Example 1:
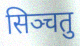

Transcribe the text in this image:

सिञ्चतु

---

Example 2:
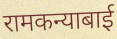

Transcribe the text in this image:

रामकन्याबाई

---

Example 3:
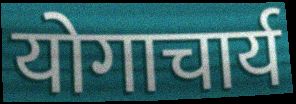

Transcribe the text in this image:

योगाचार्य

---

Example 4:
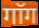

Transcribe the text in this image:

गॉग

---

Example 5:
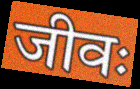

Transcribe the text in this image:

जीवः